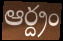
ఆర్ద్రం